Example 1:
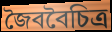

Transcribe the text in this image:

জৈববৈচিত্র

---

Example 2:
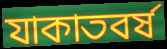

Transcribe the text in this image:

যাকাতবর্ষ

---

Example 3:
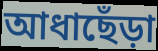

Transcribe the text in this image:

আধাছেঁড়া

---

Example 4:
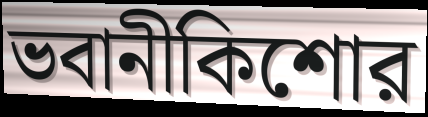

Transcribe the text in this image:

ভবানীকিশোর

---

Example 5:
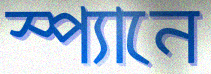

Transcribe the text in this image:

স্প্যানে